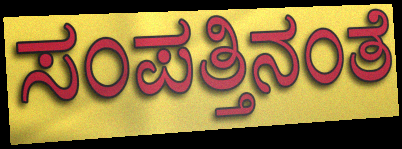
ಸಂಪತ್ತಿನಂತೆ